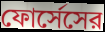
ফোর্সেসের